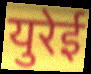
युरेई